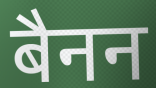
बैनन